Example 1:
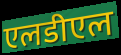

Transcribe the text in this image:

एलडीएल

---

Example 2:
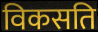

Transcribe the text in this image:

विकसति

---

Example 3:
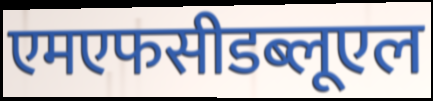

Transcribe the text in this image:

एमएफसीडब्‍लूएल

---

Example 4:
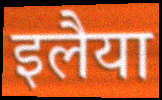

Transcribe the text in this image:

इलैया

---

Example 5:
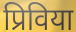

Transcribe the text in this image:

प्रिविया